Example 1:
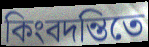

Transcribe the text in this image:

কিংবদন্তিতে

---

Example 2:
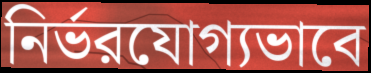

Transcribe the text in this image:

নির্ভরযোগ্যভাবে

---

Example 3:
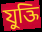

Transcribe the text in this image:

যুক্তি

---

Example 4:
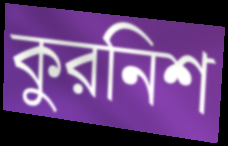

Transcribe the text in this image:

কুরনিশ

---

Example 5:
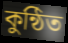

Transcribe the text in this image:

কুন্ঠিত